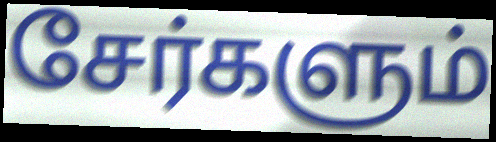
சேர்களும்